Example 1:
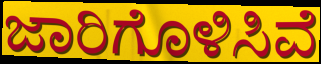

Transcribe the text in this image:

ಜಾರಿಗೊಳಿಸಿವೆ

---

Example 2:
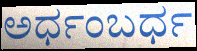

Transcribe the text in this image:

ಅರ್ಧಂಬರ್ಧ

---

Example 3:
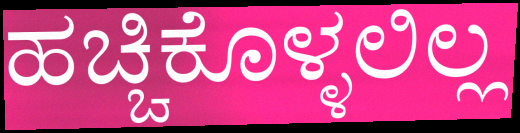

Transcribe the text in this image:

ಹಚ್ಚಿಕೊಳ್ಳಲಿಲ್ಲ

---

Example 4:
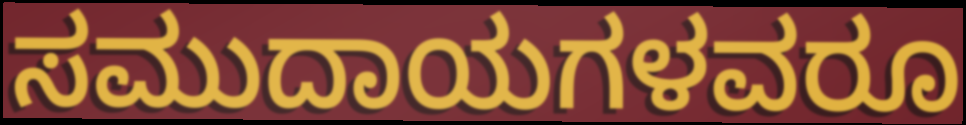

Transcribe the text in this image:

ಸಮುದಾಯಗಳವರೂ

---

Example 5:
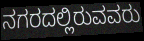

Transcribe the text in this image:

ನಗರದಲ್ಲಿರುವವರು